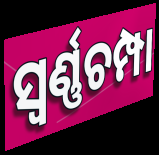
ସ୍ୱର୍ଣ୍ଣଚମ୍ପା